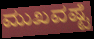
ಮುಖವಷ್ಟೆ